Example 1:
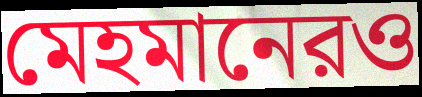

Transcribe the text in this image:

মেহমানেরও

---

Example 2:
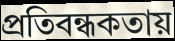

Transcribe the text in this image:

প্রতিবন্ধকতায়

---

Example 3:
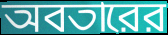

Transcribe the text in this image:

অবতারের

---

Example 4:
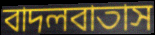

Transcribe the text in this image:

বাদলবাতাস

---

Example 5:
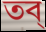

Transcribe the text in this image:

তব্